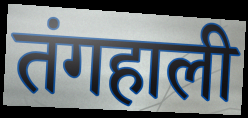
तंगहाली